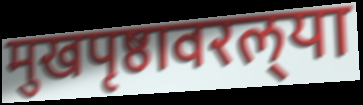
मुखपृष्ठावरल्या